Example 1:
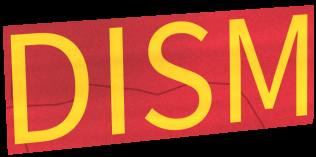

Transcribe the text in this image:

DISM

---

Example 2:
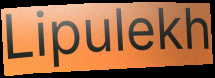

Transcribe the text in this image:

Lipulekh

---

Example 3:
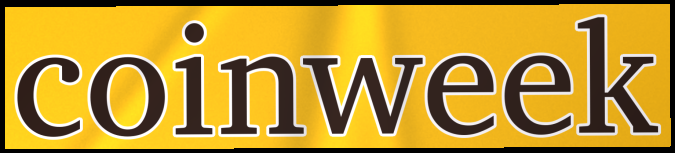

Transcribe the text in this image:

coinweek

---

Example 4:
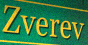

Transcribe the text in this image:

Zverev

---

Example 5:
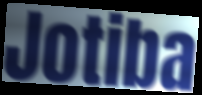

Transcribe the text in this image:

Jotiba